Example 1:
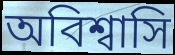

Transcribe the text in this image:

অবিশ্বাসি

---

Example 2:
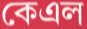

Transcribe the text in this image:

কেএল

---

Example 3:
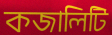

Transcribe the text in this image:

কজালিটি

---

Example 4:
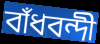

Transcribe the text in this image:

বাঁধবন্দী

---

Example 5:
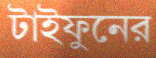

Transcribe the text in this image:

টাইফুনের